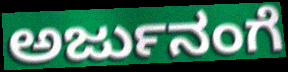
ಅರ್ಜುನಂಗೆ